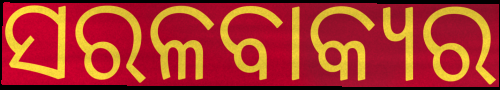
ସରଳବାକ୍ୟର